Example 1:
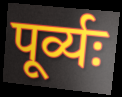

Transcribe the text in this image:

पूर्व्यः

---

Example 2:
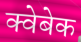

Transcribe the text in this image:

क्वेबेक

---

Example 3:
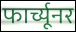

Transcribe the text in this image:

फार्च्यूनर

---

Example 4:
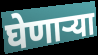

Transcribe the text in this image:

घेणाऱ्या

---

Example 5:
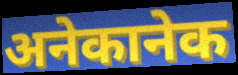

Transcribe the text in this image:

अनेकानेक